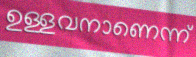
ഉള്ളവനാണെന്ന്